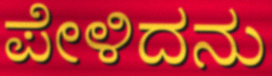
ಪೇಳಿದನು